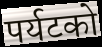
पर्यटको